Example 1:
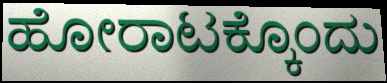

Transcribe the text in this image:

ಹೋರಾಟಕ್ಕೊಂದು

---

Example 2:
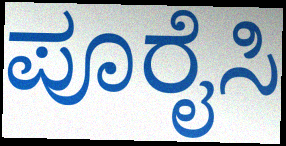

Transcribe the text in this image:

ಪೂರೈಸಿ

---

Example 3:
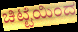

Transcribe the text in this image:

ಚಿಟ್ಟೆಯಿಂದ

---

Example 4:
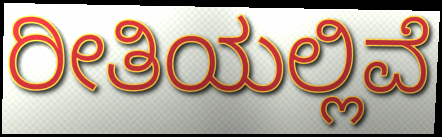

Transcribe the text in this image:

ರೀತಿಯಲ್ಲಿವೆ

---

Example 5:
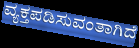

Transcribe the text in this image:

ವ್ಯಕ್ತಪಡಿಸುವಂತಾಗಿದೆ